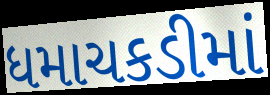
ધમાચકડીમાં